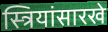
स्त्रियांसारखे